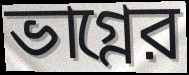
ভাগ্নের